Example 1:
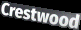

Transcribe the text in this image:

Crestwood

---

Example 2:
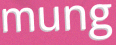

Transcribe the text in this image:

mung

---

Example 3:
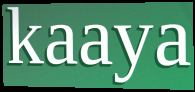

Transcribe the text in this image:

kaaya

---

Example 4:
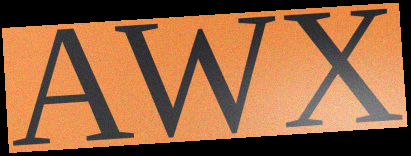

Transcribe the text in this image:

AWX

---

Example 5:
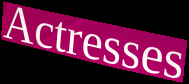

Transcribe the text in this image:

Actresses